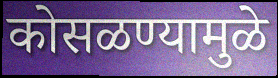
कोसळण्यामुळे